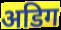
अडिग